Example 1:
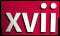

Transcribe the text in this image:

xvii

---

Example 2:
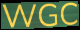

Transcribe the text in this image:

WGC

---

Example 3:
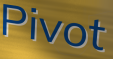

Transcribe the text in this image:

Pivot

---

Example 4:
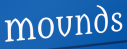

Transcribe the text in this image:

mounds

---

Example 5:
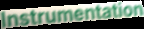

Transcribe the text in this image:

Instrumentation